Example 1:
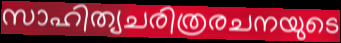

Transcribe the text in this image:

സാഹിത്യചരിത്രരചനയുടെ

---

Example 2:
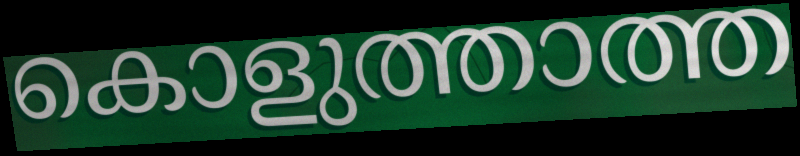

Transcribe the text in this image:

കൊളുത്താത്ത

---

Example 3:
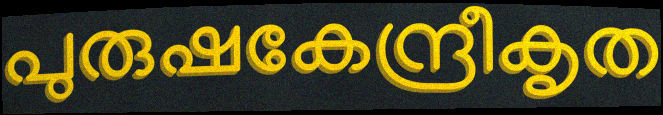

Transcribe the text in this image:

പുരുഷകേന്ദ്രീകൃത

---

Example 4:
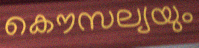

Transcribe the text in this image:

കൌസല്യയും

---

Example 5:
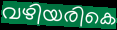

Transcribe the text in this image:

വഴിയരികെ